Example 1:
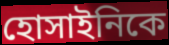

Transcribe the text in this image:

হোসাইনিকে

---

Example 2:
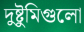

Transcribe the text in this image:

দুষ্টুমিগুলো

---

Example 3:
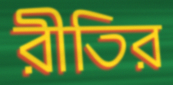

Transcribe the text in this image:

রীতির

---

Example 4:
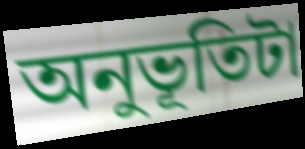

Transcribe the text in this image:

অনুভূতিটা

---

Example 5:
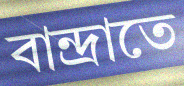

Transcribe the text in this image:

বান্দ্রাতে